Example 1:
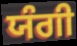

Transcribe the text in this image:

ਯੰਗੀ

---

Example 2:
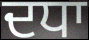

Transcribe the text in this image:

ਦਧਾ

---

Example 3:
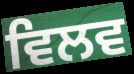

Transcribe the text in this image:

ਵਿਲਵ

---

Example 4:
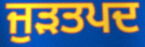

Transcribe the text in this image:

ਜੁੜਤਪਦ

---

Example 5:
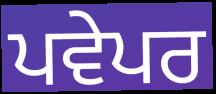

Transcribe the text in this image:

ਪਵੇਪਰ